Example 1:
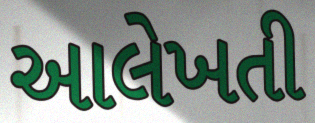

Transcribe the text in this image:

આલેખતી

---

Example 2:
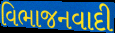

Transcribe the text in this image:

વિભાજનવાદી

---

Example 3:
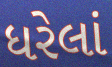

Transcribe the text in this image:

ધરેલાં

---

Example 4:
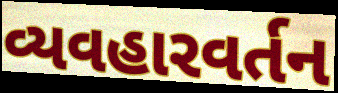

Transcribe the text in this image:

વ્યવહારવર્તન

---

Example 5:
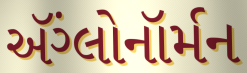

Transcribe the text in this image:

ઍંગ્લોનૉર્મન